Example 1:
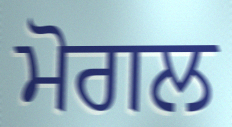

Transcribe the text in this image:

ਮੋਗਲ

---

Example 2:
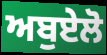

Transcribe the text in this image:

ਅਬੁਏਲੋ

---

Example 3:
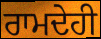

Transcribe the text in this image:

ਰਾਮਦੇਹੀ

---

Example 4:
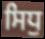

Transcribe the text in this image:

ਸਿਧੁ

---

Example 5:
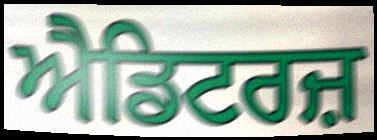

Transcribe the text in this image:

ਐਡਿਟਰਜ਼